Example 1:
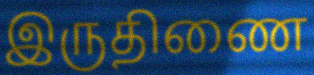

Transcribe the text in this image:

இருதிணை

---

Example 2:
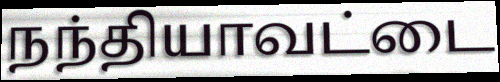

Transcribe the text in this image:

நந்தியாவட்டை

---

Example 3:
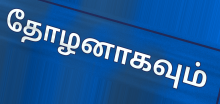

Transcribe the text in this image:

தோழனாகவும்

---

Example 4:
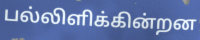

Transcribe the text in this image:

பல்லிளிக்கின்றன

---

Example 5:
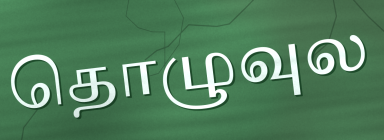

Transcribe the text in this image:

தொழுவுல